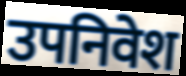
उपनिवेश